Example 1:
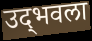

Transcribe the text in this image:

उद्‌भवला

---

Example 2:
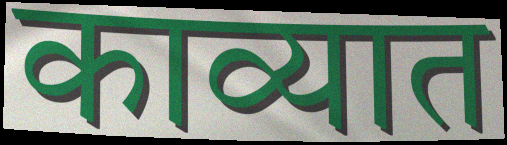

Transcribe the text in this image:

काव्यात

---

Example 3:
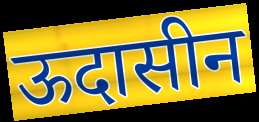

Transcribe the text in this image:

ऊदासीन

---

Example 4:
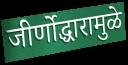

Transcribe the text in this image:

जीर्णोद्धारामुळे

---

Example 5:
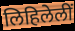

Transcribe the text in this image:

लिहिलेलीं